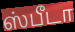
ஸ்பீடா